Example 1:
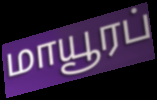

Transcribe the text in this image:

மாயூரப்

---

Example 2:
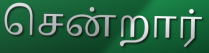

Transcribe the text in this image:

சென்றார்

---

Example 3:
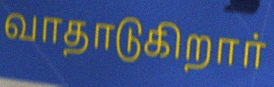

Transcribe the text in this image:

வாதாடுகிறார்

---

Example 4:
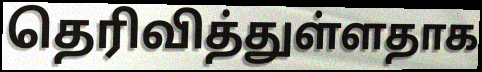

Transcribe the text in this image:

தெரிவித்துள்ளதாக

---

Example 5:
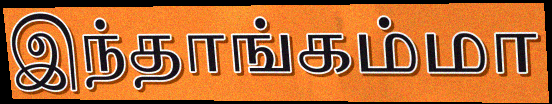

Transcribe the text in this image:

இந்தாங்கம்மா